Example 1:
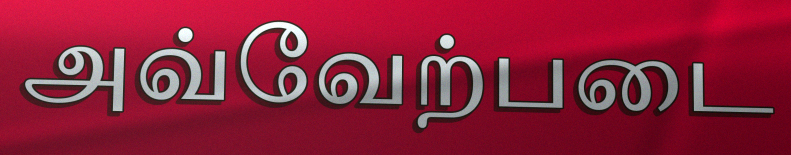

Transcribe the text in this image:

அவ்வேற்படை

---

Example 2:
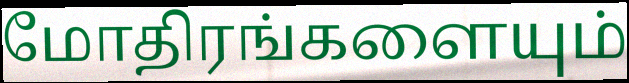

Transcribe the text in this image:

மோதிரங்களையும்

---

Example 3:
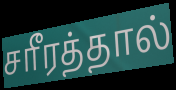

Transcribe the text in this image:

சரீரத்தால்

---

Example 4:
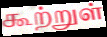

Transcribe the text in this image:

கூற்றுள்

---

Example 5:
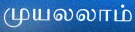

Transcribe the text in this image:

முயலலாம்